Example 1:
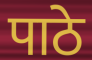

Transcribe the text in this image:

पाठे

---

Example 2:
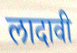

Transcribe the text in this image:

लादावी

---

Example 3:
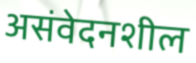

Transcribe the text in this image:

असंवेदनशील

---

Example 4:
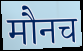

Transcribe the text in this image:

मौनच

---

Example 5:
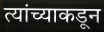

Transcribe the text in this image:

त्यांच्याकडून